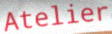
Atelier